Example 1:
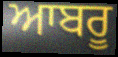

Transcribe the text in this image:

ਆਬਰੂ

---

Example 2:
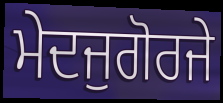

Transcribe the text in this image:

ਮੇਦਜੁਗੋਰਜੇ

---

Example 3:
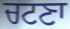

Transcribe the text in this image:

ਚਟਣਾ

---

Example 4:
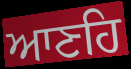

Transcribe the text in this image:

ਆਣਹਿ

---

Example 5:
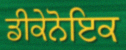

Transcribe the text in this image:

ਡੀਕੇਨੋਇਕ